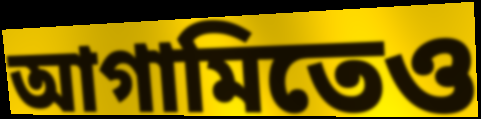
আগামিতেও